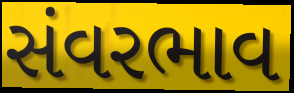
સંવરભાવ